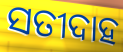
ସତୀଦାହ